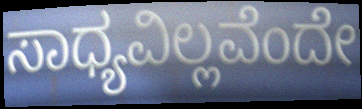
ಸಾಧ್ಯವಿಲ್ಲವೆಂದೇ